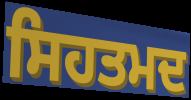
ਸਿਹਤਮਦ